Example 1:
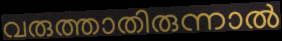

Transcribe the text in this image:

വരുത്താതിരുന്നാൽ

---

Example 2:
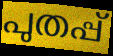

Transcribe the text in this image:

പുതപ്പ്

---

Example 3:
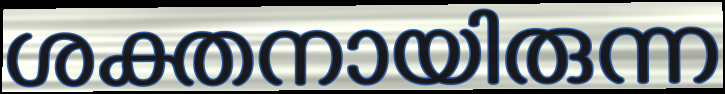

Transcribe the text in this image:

ശക്തനായിരുന്ന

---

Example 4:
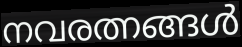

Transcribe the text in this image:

നവരത്നങ്ങൾ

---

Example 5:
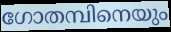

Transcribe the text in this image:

ഗോതമ്പിനെയും